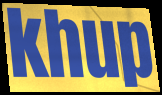
khup